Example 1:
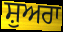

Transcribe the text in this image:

ਸ਼ੁਅਰਾ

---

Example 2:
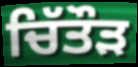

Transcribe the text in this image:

ਚਿੱਤੌੜ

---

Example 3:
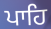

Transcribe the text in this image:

ਪਾਹਿ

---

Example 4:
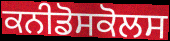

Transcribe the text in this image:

ਕਨੀਡੋਸਕੋਲਸ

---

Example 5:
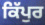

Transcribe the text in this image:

ਕਿੱਪੁਰ